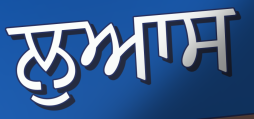
ਲੁਆਸ